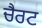
ਚੈਰਟ